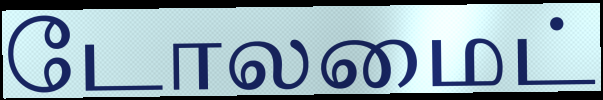
டோலமைட்